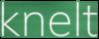
knelt